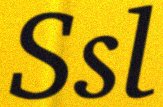
Ssl